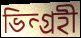
ভিন্গ্রহী